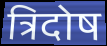
त्रिदोष